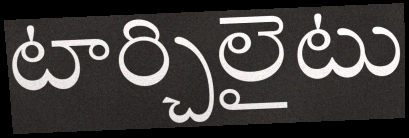
టార్చిలైటు